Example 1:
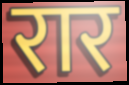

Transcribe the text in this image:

रार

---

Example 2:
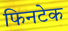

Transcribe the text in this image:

फिनटेक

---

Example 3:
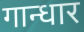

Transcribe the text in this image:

गान्धार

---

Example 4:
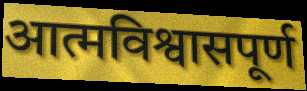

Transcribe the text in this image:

आत्मविश्वासपूर्ण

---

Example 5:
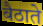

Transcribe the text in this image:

बैठाते